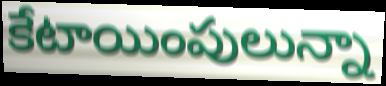
కేటాయింపులున్నా